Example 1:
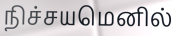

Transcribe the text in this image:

நிச்சயமெனில்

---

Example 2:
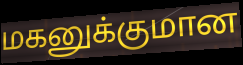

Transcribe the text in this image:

மகனுக்குமான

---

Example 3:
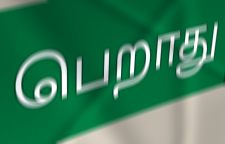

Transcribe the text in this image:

பெறாது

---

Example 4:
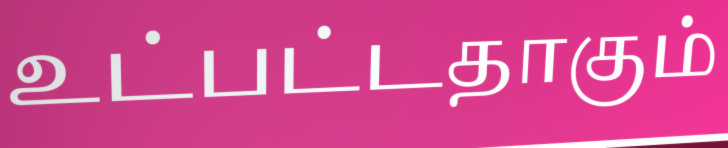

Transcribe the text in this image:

உட்பட்டதாகும்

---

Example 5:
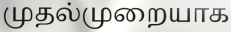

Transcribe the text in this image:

முதல்முறையாக